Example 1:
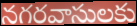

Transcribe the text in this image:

నగరవాసులకు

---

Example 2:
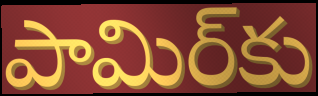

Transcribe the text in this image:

పామిర్‌కు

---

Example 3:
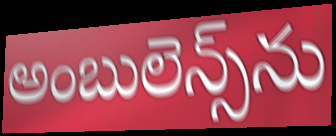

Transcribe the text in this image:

అంబులెన్స్‌ను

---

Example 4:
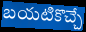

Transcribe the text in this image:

బయటికొచ్చే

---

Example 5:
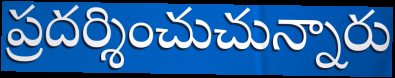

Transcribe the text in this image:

ప్రదర్శించుచున్నారు